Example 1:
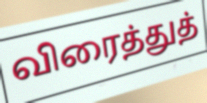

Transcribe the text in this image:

விரைத்துத்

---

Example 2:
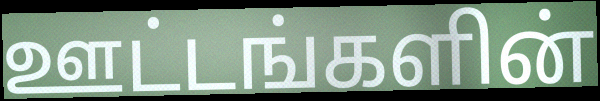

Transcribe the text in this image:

ஊட்டங்களின்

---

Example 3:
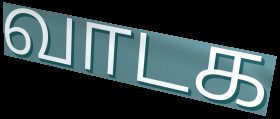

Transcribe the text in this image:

வாடக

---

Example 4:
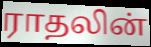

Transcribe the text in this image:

ராதலின்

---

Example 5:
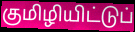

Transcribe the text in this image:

குமிழியிட்டுப்